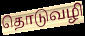
தொடுவழி